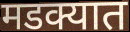
मडक्यात